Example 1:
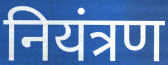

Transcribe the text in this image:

नियंत्रण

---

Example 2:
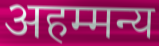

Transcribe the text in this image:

अहम्मन्य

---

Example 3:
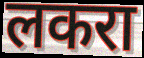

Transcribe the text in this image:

लकरा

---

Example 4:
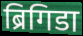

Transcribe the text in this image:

ब्रिगिडा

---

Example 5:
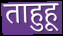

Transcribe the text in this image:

ताहुहू